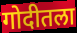
गोदीतला